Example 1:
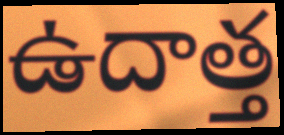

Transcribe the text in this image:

ఉదాత్త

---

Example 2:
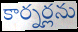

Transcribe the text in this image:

కార్నర్లను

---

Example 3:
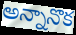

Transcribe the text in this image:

అన్నానొక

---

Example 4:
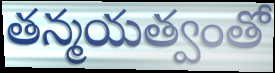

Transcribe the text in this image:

తన్మయత్వంతో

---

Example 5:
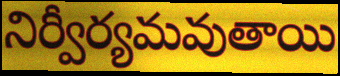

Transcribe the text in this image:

నిర్వీర్యమవుతాయి